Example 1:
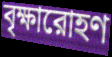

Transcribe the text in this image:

বৃক্ষারোহণ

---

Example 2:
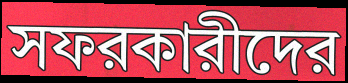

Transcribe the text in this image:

সফরকারীদের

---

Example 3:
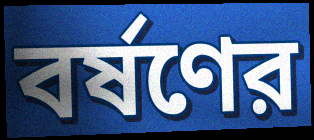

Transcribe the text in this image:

বর্ষণের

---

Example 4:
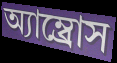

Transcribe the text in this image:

অ্যাম্ব্রোস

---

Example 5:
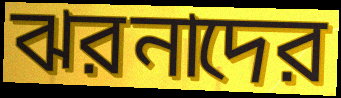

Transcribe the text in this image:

ঝরনাদের